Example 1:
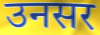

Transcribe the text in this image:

उनसर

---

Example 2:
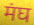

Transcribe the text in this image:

मंघ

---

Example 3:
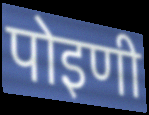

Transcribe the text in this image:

पोइणी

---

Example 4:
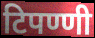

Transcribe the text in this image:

टिपण्णी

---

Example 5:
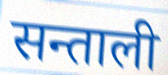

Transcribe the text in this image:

सन्ताली